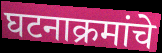
घटनाक्रमांचे